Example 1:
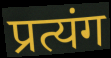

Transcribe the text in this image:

प्रत्यंग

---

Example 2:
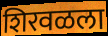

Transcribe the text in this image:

शिरवळला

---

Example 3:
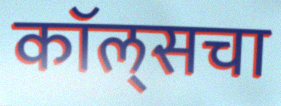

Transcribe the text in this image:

कॉल्सचा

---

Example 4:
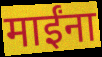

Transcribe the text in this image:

माईंना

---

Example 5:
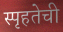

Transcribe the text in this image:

स्पृहतेची